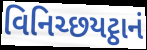
વિનિચ્છયટ્ઠાનં